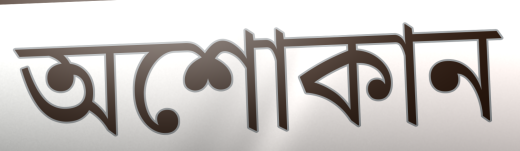
অশোকান